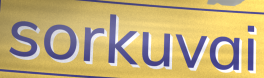
sorkuvai